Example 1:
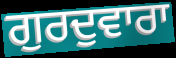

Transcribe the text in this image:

ਗੁਰਦੁਵਾਰਾ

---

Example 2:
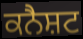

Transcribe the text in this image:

ਕਨੈਸ਼ਟ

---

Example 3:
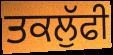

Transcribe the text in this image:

ਤਕਲੁੱਫੀ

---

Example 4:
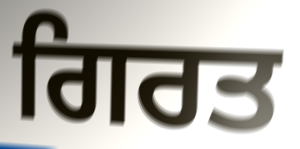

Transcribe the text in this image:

ਗਿਰਤ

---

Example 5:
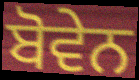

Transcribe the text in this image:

ਬੋਵੇਨ